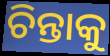
ଚିନ୍ତାକୁ